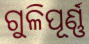
ଗୁଳିପୂର୍ଣ୍ଣ